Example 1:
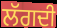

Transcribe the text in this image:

ਲੱਗਦੀ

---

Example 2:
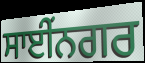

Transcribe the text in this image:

ਸਾਈਂਨਗਰ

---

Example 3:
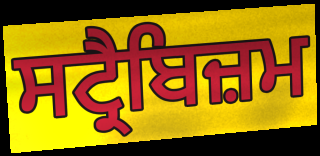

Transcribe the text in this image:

ਸਟ੍ਰੈਬਿਜ਼ਮ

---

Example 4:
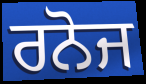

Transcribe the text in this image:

ਰਨੋਜ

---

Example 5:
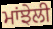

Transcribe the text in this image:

ਮਾਂਝੇਲੀ